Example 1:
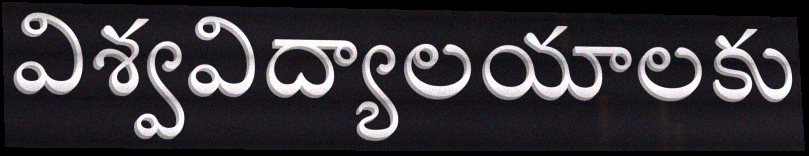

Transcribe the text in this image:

విశ్వవిద్యాలయాలకు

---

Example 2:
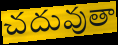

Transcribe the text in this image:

చదువుతా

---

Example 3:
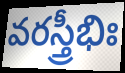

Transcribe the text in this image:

వరస్త్రీభిః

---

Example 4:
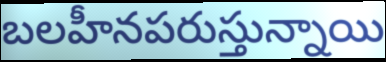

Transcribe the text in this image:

బలహీనపరుస్తున్నాయి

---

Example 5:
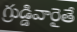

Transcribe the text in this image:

గ్రుడ్డివారైతే